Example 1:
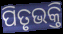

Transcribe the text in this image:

ପିତୃଭକ୍ତି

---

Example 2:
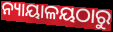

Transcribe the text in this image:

ନ୍ୟାୟାଳୟଠାରୁ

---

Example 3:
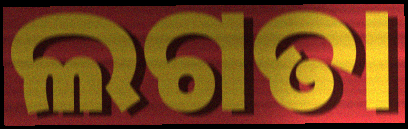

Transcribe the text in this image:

ଲଗତା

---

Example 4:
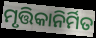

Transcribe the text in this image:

ମୃତ୍ତିକାନିର୍ମିତ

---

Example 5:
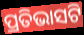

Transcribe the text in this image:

ପ୍ରତିଭାସଟି